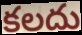
కలదు